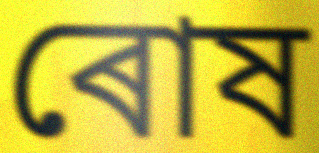
ৰোষ